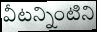
వీటన్నింటిని